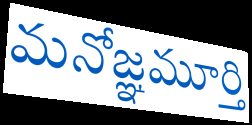
మనోజ్ఞమూర్తి